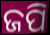
ଜପି